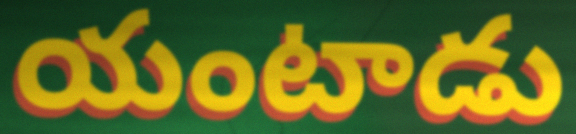
యంటాడు